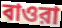
বাওরা